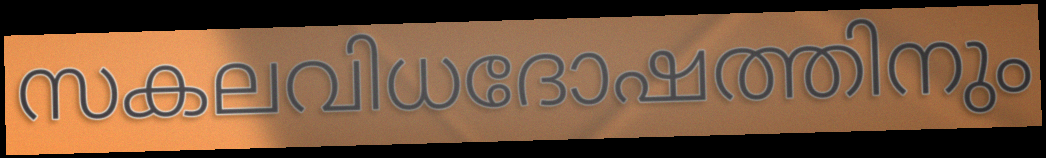
സകലവിധദോഷത്തിനും